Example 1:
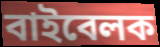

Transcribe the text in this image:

বাইবেলক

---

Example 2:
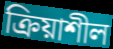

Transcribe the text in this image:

ক্ৰিয়াশীল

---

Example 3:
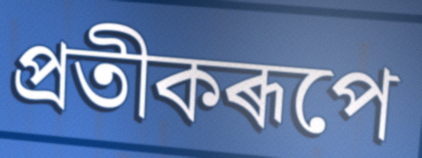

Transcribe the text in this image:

প্ৰতীকৰূপে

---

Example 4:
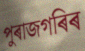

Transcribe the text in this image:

পুৰাজগৰিৰ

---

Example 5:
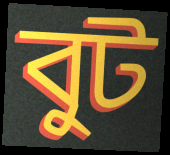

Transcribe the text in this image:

বুট